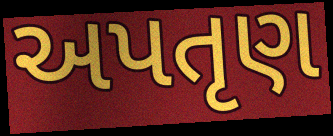
અપતૃણ